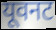
यूवनट